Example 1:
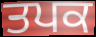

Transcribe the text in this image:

ਤਪਕ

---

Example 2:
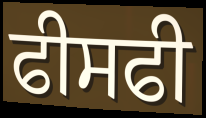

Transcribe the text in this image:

ਫੀਸਫੀ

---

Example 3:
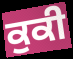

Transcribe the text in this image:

ਕੁਕੀ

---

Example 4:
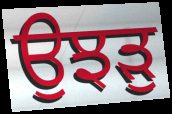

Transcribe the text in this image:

ਉਝੜੁ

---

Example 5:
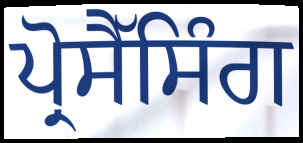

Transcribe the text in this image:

ਪ੍ਰੋਸੈੱਸਿੰਗ